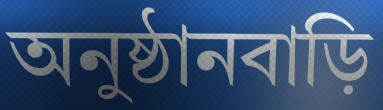
অনুষ্ঠানবাড়ি